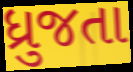
ધ્રુજતા